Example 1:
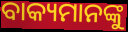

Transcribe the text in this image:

ବାକ୍ୟମାନଙ୍କୁ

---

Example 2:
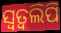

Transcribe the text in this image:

ସ୍ୱତ୍ୱଲିପି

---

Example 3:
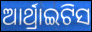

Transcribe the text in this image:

ଆର୍ଥ୍ରାଇଟିସ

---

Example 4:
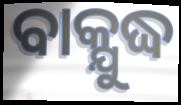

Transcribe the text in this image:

ବାକ୍ଯୁଦ୍ଧ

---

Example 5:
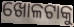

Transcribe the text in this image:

ଖୋଳଟାକୁ